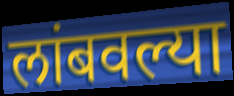
लांबवल्या